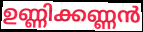
ഉണ്ണിക്കണ്ണൻ